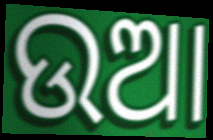
ଉଆ